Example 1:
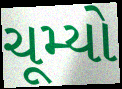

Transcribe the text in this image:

ચૂમ્યો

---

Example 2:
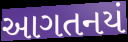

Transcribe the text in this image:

આગતનયં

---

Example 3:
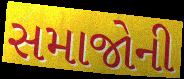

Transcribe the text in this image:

સમાજોની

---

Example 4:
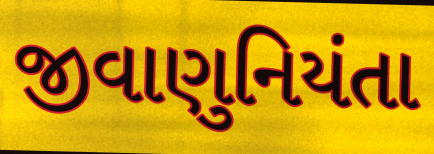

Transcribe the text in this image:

જીવાણુનિયંતા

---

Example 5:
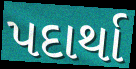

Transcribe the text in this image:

પદાર્થા